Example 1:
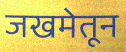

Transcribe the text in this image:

जखमेतून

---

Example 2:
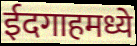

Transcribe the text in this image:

ईदगाहमध्ये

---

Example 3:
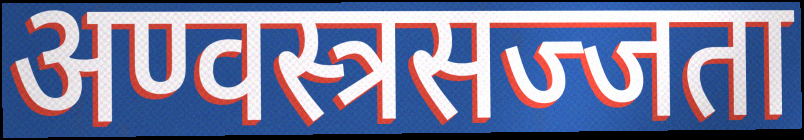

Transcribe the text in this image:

अण्वस्त्रसज्जता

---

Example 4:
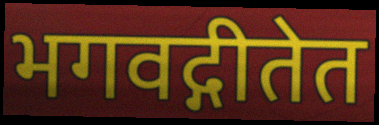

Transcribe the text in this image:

भगवद्गीतेत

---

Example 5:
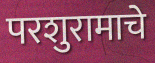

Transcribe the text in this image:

परशुरामाचे